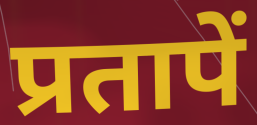
प्रतापें